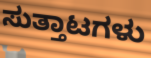
ಸುತ್ತಾಟಗಳು